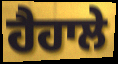
ਹੈਹਾਲੇ